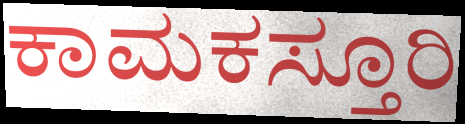
ಕಾಮಕಸ್ತೂರಿ